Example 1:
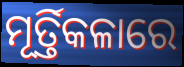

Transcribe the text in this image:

ମୂର୍ତ୍ତିକଳାରେ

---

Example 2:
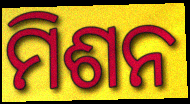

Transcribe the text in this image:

ମିଶନ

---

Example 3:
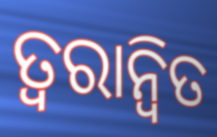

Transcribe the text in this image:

ତ୍ୱରାନ୍ୱିତ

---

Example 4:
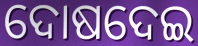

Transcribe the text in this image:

ଦୋଷଦେଇ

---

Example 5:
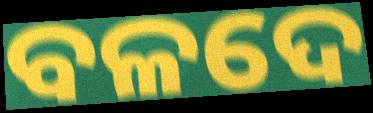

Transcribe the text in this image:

ବଳଦେ